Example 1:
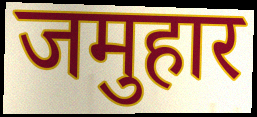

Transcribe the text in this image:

जमुहार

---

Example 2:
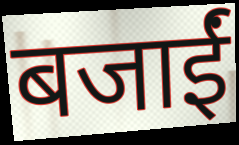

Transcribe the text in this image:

बजाईं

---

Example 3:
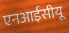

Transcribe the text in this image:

एनआईसीयू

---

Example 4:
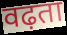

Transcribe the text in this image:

वढ़ता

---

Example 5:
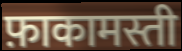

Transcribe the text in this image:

फ़ाकामस्ती